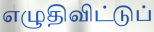
எழுதிவிட்டுப்